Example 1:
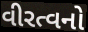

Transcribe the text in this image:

વીરત્વનો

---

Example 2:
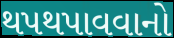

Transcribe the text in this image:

થપથપાવવાનો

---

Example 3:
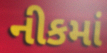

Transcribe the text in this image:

નીકમાં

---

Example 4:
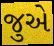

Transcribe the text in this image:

જુએ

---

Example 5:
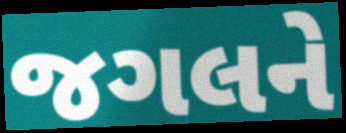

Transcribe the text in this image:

જગલને